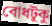
বোধটুকু